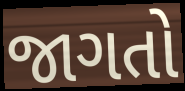
જાગતો